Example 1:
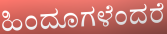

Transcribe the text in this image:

ಹಿಂದೂಗಳೆಂದರೆ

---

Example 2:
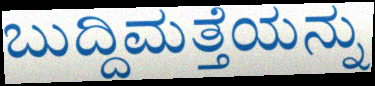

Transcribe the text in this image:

ಬುದ್ದಿಮತ್ತೆಯನ್ನು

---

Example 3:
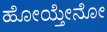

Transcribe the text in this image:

ಹೋಯ್ತೇನೋ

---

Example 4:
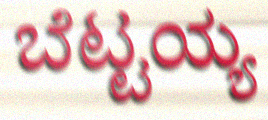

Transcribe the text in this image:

ಬೆಟ್ಟಯ್ಯ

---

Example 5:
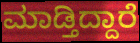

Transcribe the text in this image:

ಮಾಡ್ತಿದ್ದಾರೆ